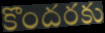
కొందరకు